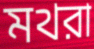
মথরা